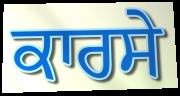
ਕਾਰਸੇ